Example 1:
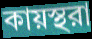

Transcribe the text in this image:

কায়স্থরা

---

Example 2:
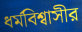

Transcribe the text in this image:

ধর্মবিশ্বাসীর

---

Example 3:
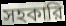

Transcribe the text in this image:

সহকারি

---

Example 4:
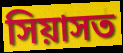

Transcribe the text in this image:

সিয়াসত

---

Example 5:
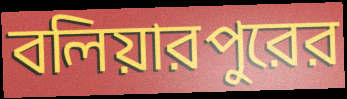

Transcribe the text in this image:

বলিয়ারপুরের